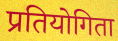
प्रतियोगिता